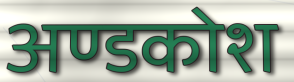
अण्डकोश